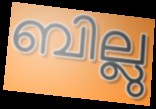
ബില്ലു